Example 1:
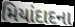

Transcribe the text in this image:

મિયાંદાદના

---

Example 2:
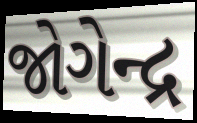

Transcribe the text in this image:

જોગેન્દ્ર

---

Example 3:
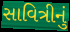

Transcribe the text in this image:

સાવિત્રીનું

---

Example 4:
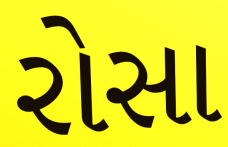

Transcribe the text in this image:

રોસા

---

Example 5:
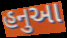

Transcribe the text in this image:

હનુઆ